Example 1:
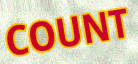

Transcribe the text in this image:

COUNT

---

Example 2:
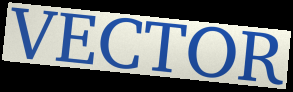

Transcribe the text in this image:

VECTOR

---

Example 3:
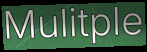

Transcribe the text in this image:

Mulitple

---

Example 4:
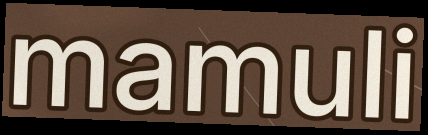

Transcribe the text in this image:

mamuli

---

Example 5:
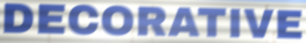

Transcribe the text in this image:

DECORATIVE